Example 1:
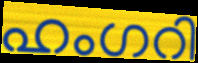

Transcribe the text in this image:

ഹംഗറി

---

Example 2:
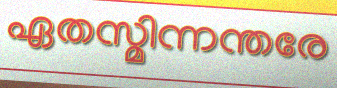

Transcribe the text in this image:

ഏതസ്മിന്നന്തരേ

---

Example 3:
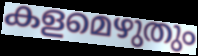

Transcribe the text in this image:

കളമെഴുതും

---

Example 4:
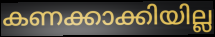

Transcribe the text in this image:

കണക്കാക്കിയില്ല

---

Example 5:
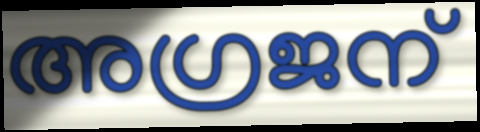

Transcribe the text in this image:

അഗ്രജന്